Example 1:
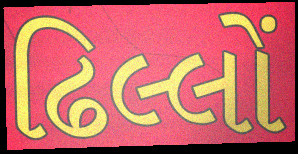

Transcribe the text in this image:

ઢિલ્લોં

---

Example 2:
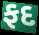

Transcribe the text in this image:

ફદ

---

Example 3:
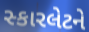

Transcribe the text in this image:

સ્કારલેટને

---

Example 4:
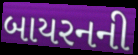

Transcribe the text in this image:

બાયરનની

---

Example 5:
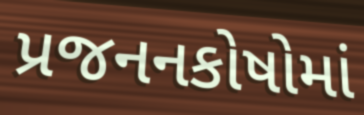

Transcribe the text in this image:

પ્રજનનકોષોમાં